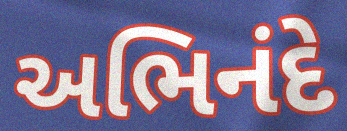
અભિનંદે